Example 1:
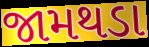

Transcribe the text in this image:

જામથડા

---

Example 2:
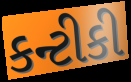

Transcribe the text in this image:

કન્ટીકી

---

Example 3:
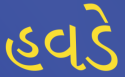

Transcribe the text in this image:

હવડે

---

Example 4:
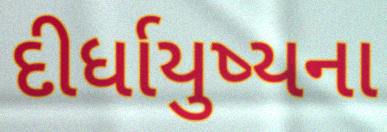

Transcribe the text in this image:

દીર્ધાયુષ્યના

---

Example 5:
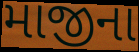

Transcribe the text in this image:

માજીના